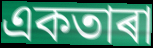
একতাৰা